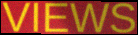
VIEWS